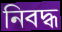
নিবদ্ধ